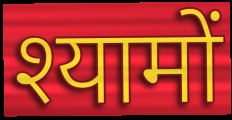
श्यामों